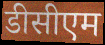
डीसीएम